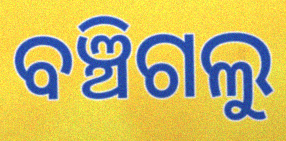
ବଞ୍ଚିଗଲୁ